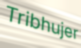
Tribhujer